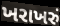
ખરાખરું